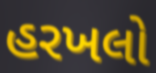
હરખલો